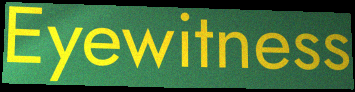
Eyewitness